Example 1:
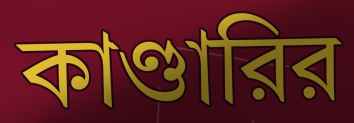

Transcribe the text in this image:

কাণ্ডারির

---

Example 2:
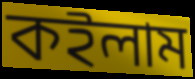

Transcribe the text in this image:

কইলাম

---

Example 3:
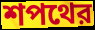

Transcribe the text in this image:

শপথের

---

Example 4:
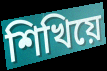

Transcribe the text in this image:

শিখিয়ে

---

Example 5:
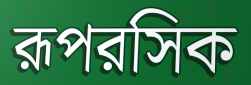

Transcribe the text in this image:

রূপরসিক